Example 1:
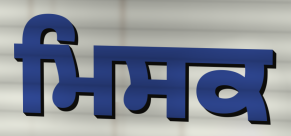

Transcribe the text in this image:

ਮਿਸਕ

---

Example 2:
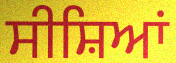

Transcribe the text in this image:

ਸੀਸ਼ਿਆਂ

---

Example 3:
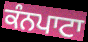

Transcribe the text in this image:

ਕੰਨਪਾਟਾ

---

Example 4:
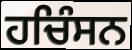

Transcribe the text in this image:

ਹਚਿੰਸਨ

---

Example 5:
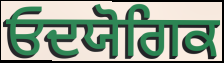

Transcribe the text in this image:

ਓਦਯੋਗਿਕ